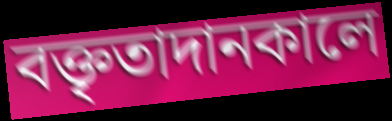
বক্তৃতাদানকালে